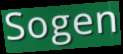
Sogen